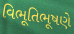
વિભૂતિભૂષણે